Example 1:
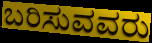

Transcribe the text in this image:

ಬರಿಸುವವರು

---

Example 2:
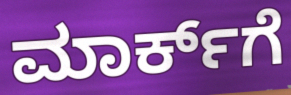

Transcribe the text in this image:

ಮಾರ್ಕ್‌ಗೆ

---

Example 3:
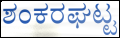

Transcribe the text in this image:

ಶಂಕರಘಟ್ಟ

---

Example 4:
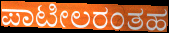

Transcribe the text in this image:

ಪಾಟೀಲರಂತಹ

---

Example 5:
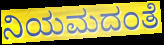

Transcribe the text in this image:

ನಿಯಮದಂತೆ